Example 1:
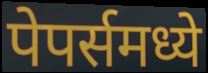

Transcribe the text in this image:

पेपर्समध्ये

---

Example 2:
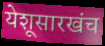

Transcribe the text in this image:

येशूसारखंच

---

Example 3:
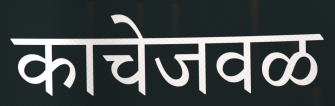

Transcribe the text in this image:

काचेजवळ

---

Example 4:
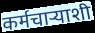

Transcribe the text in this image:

कर्मचाऱ्याशी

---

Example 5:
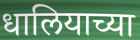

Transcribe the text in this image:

धालियाच्या